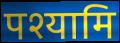
पश्यामि